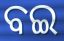
ବଇ